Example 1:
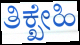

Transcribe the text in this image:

ತಿಕ್ಖೇಹಿ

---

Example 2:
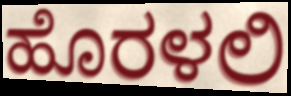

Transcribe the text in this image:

ಹೊರಳಲಿ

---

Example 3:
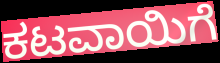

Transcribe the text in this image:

ಕಟವಾಯಿಗೆ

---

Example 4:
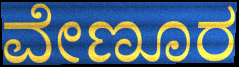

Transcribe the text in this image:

ವೇಣೂರ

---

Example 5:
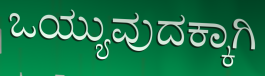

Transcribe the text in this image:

ಒಯ್ಯುವುದಕ್ಕಾಗಿ